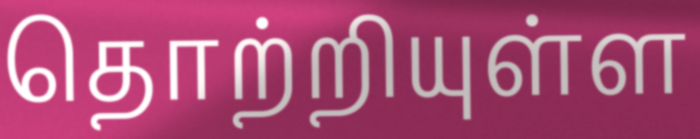
தொற்றியுள்ள